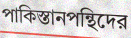
পাকিস্তানপন্থিদের